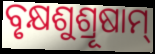
ବୃକ୍ଷଶୁଶ୍ରୂଷାମ୍